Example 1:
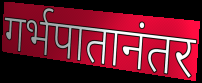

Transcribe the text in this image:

गर्भपातानंतर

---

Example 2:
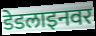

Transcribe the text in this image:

डेडलाइनवर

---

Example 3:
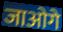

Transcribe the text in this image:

जाओगे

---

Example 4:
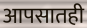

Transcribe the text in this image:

आपसातही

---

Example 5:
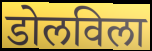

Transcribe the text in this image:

डोलविला